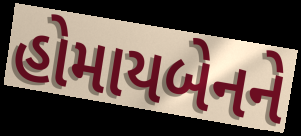
હોમાયબેનને